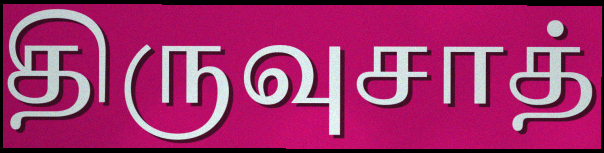
திருவுசாத்